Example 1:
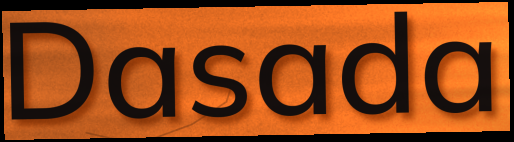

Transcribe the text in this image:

Dasada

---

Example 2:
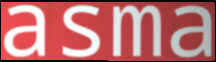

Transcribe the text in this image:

asma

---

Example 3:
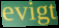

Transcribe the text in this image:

evigt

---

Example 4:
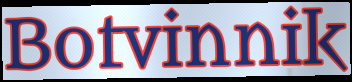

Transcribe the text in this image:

Botvinnik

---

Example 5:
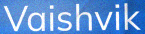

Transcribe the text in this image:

Vaishvik